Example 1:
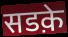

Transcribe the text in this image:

सडक़े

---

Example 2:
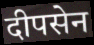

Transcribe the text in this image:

दीपसेन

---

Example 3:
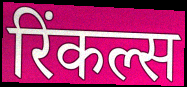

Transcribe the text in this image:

रिंकल्स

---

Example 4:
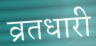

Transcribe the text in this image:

व्रतधारी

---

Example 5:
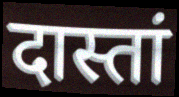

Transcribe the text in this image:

दास्तां